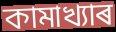
কামাখ্যাৰ